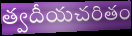
త్వదీయచరితం